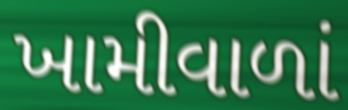
ખામીવાળાં